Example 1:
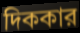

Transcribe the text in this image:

দিককার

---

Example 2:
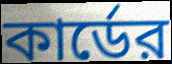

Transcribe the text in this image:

কার্ডের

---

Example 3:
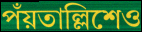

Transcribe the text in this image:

পঁয়তাল্লিশেও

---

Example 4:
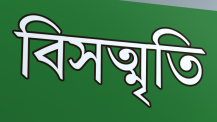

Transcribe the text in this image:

বিসত্মৃতি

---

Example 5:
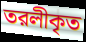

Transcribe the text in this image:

তরলীকৃত